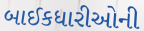
બાઈકધારીઓની